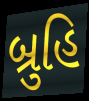
બ્રુહિ